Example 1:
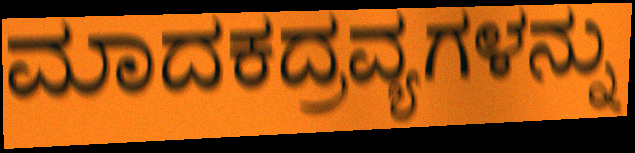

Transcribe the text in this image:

ಮಾದಕದ್ರವ್ಯಗಳನ್ನು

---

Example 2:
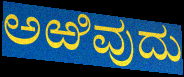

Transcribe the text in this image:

ಅಱಿವುದು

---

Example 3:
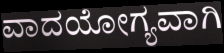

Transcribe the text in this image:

ವಾದಯೋಗ್ಯವಾಗಿ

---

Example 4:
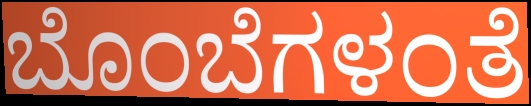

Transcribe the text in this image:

ಬೊಂಬೆಗಳಂತೆ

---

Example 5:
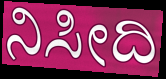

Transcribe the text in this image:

ನಿಸೀದಿ